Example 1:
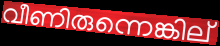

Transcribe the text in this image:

വീണിരുന്നെങ്കില്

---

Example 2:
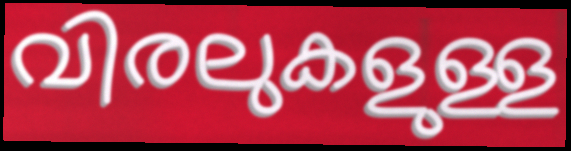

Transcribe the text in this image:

വിരലുകളുള്ള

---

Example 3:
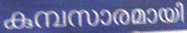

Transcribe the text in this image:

കുമ്പസാരമായി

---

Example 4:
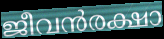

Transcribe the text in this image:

ജീവൻരക്ഷാ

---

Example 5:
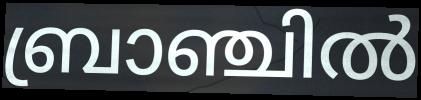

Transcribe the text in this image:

ബ്രാഞ്ചിൽ